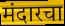
मंदारचा